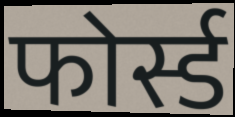
फोर्स्ड